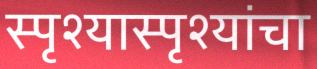
स्पृश्यास्पृश्यांचा